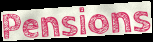
Pensions